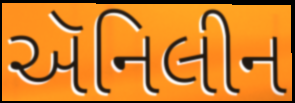
ઍનિલીન